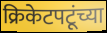
क्रिकेटपटूंच्या